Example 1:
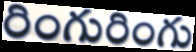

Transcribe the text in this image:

రింగురింగు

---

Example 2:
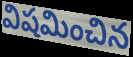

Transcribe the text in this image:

విషమించిన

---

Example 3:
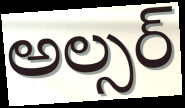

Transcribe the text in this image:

అల్సర్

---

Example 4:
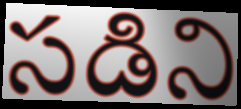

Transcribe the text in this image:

సడిని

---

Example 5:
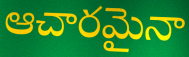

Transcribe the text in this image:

ఆచారమైనా